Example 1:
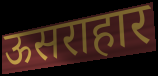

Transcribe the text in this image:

ऊसराहार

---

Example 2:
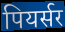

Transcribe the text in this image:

पियर्सर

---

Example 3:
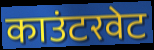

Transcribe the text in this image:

काउंटरवेट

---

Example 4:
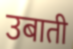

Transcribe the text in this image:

उबाती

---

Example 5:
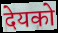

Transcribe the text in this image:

देयको